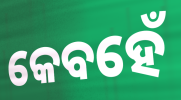
କେବହେଁ